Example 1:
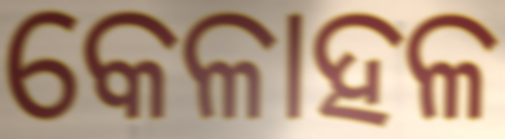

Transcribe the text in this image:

କେଳାହଳ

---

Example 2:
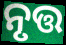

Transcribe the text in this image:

ନୃତ୍ତ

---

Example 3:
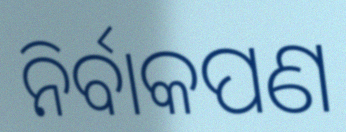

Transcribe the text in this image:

ନିର୍ବାକପଣ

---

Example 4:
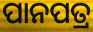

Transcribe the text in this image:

ପାନପତ୍ର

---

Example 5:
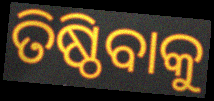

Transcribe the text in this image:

ତିଷ୍ଠିବାକୁ